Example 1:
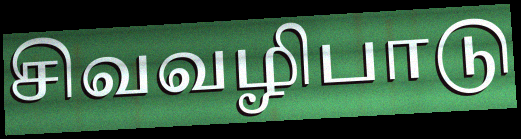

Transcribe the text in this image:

சிவவழிபாடு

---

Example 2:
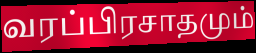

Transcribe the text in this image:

வரப்பிரசாதமும்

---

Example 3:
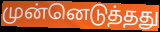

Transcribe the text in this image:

முன்னெடுத்தது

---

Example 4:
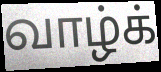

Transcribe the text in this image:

வாழ்க்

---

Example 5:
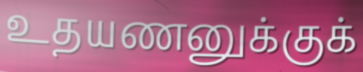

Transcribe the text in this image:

உதயணனுக்குக்